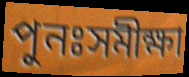
পুনঃসমীক্ষা